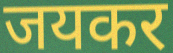
जयकर